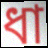
ধা